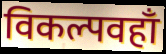
विकल्पवहाँ